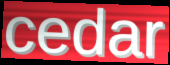
cedar